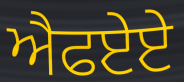
ਐਫਏਏ